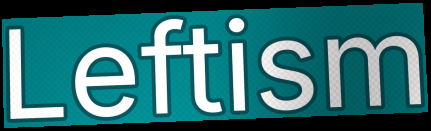
Leftism